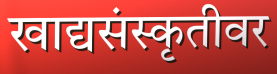
खाद्यसंस्कृतीवर